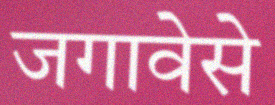
जगावेसे